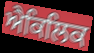
ਐਕਿਲਿਕ